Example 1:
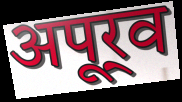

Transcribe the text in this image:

अपूर्व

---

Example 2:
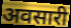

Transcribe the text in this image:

अवसारी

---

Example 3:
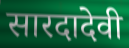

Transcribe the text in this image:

सारदादेवी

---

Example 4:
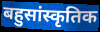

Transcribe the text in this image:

बहुसांस्कृतिक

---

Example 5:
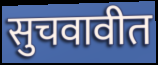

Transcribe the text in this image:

सुचवावीत